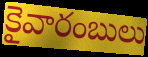
కైవారంబులు